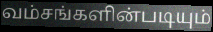
வம்சங்களின்படியும்